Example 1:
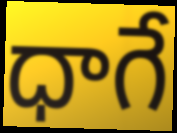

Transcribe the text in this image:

ధాగే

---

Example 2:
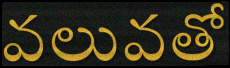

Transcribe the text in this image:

వలువతో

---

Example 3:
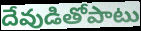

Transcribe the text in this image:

దేవుడితోపాటు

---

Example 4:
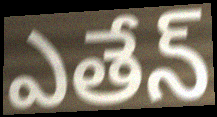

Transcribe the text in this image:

ఎతేన్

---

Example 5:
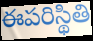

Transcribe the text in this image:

ఈపరిస్థితి